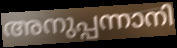
അനുപ്പന്നാനി